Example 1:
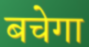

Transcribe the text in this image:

बचेगा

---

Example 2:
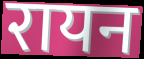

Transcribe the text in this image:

रायन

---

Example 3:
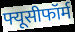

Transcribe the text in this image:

फ्यूसीफॉर्म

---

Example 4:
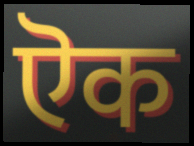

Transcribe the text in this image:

ऎक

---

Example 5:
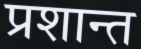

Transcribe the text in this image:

प्रशान्त